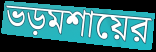
ভড়মশায়ের